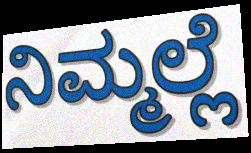
ನಿಮ್ಮಲ್ಲೆ